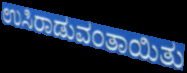
ಉಸಿರಾಡುವಂತಾಯಿತು